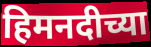
हिमनदीच्या